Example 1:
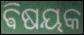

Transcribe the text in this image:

ଵିଷୟକ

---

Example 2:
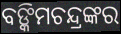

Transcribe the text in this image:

ବଙ୍କିମଚନ୍ଦ୍ରଙ୍କର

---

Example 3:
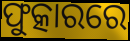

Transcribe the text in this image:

ଫୁତ୍କାରରେ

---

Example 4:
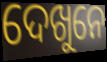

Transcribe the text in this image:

ଦେଖୁନେ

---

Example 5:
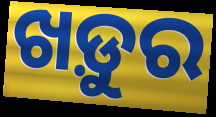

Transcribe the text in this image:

ଖଡ଼ୁର